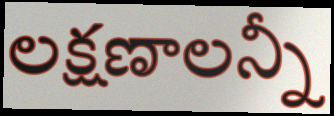
లక్షణాలన్నీ